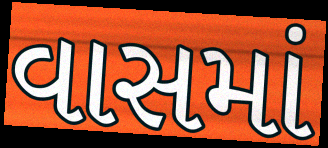
વાસમાં